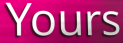
Yours